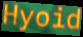
Hyoid